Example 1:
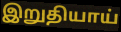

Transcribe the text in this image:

இறுதியாய்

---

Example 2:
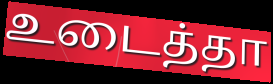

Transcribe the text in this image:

உடைத்தா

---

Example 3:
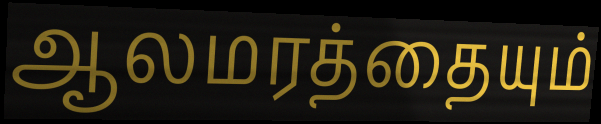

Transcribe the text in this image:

ஆலமரத்தையும்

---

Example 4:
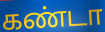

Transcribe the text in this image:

கண்டா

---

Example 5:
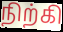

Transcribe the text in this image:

நிற்கி